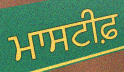
ਮਾਸਟੀਫ਼